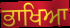
ਭਾਖਿਆ